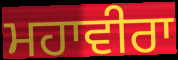
ਮਹਾਵੀਰਾ